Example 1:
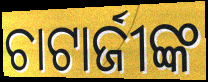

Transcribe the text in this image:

ଚାଟାର୍ଜୀଙ୍କ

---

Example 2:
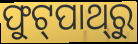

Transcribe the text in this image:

ଫୁଟ୍‌ପାଥ୍‌ରୁ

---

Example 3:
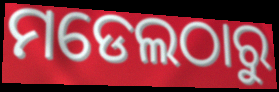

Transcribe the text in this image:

ମଡେଲଠାରୁ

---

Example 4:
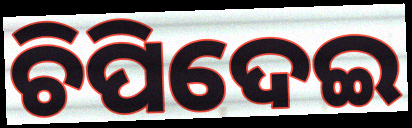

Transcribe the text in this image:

ଚିପିଦେଇ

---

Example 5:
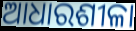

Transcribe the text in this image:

ଆଧାରଶୀଳା